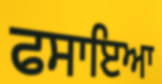
ਫਸਾਇਆ